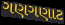
ગણગણાટ